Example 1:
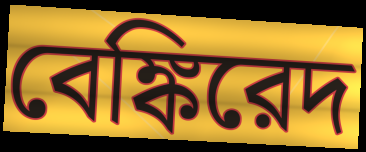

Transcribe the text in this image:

বেঙ্কিরেদ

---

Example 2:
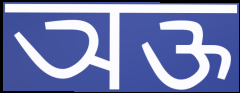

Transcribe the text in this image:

অক্ত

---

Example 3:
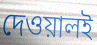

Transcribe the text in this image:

দেওয়ালই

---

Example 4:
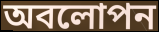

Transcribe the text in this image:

অবলোপন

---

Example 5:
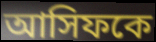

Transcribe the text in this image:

আসিফকে